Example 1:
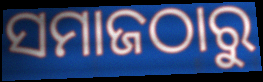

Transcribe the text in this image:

ସମାଜଠାରୁ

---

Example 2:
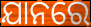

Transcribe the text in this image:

ଯାନରେ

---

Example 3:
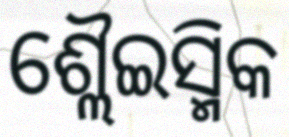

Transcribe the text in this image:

ଶ୍ଲୈଇସ୍ମିକ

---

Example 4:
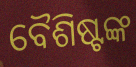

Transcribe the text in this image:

ବୈଶିଷ୍ଟଙ୍କ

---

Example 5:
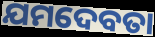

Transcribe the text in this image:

ଯମଦେବତା